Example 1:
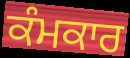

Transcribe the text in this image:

ਕੰਮਕਾਰ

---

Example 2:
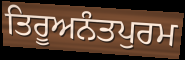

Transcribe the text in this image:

ਤਿਰੂਅਨੰਤਪੁਰਮ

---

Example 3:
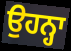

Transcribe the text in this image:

ਉਹਨ੍ਹਾ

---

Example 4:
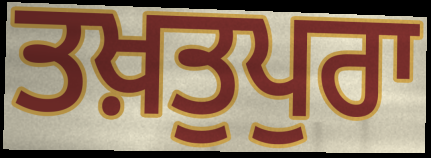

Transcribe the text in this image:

ਤਖ਼ਤੁਪੁਰਾ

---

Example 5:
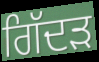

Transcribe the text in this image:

ਗਿੱਦਡ਼